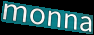
monna